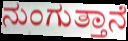
ನುಂಗುತ್ತಾನೆ